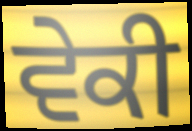
ਵੇਕੀ